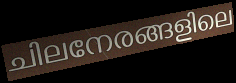
ചിലനേരങ്ങളിലെ